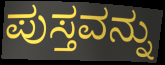
ಪುಸ್ತವನ್ನು